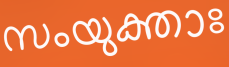
സംയുക്താഃ